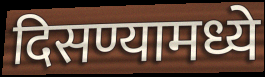
दिसण्यामध्ये